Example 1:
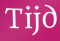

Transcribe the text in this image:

Tijd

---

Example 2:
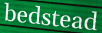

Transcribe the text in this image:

bedstead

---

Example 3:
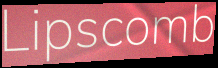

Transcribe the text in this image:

Lipscomb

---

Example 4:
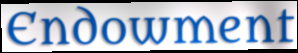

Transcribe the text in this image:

Endowment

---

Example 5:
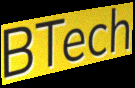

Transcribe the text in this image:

BTech